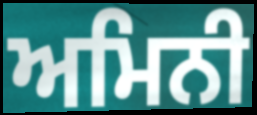
ਅਮਿਨੀ